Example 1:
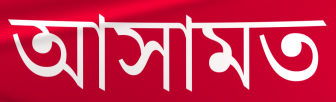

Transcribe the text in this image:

আসামত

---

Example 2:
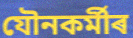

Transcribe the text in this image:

যৌনকৰ্মীৰ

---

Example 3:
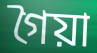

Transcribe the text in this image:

গৈয়া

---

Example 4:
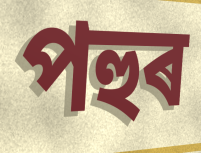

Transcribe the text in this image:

পহুৰ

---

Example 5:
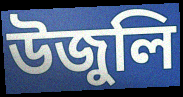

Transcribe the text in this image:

উজুলি